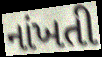
નાંખતી